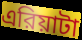
এরিয়াটা